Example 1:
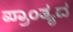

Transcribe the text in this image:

ಪ್ರಾಂತ್ಯದ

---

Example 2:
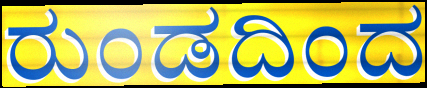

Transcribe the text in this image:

ರುಂಡದಿಂದ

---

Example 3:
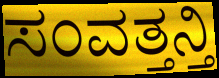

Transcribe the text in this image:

ಸಂವತ್ತನ್ತಿ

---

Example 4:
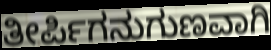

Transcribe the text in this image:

ತೀರ್ಪಿಗನುಗುಣವಾಗಿ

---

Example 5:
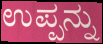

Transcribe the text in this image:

ಉಪ್ಪನ್ನು